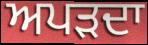
ਅਪੜਦਾ